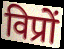
विप्रों